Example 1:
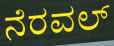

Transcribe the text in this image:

ನೆರವಲ್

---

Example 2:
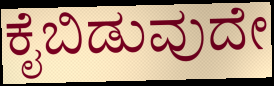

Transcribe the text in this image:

ಕೈಬಿಡುವುದೇ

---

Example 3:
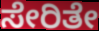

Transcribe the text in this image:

ಸೇರಿತೇ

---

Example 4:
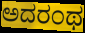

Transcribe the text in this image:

ಅದರಂಥ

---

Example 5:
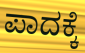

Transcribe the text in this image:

ಪಾದಕ್ಕೆ